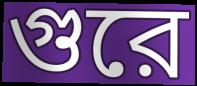
গুরে